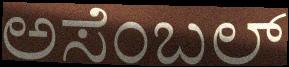
ಅಸೆಂಬಲ್